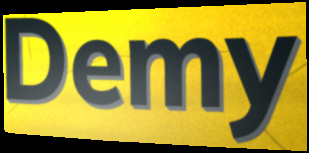
Demy